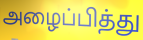
அழைப்பித்து